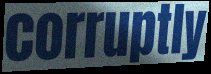
corruptly